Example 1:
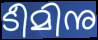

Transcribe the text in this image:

ടീമിനു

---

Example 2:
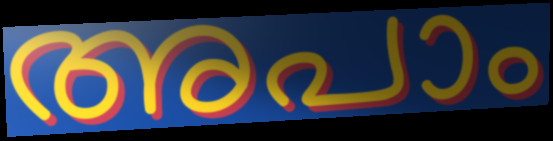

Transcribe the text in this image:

അപാം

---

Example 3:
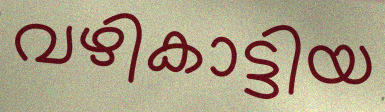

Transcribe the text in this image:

വഴികാട്ടിയ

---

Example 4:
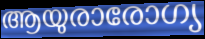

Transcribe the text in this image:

ആയുരാരോഗ്യ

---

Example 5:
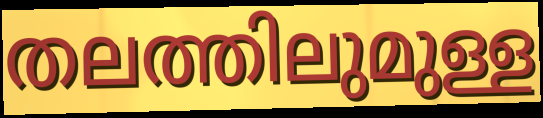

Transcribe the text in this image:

തലത്തിലുമുള്ള